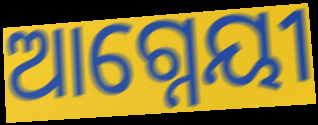
ଆଗ୍ନେୟୀ